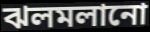
ঝলমলানো